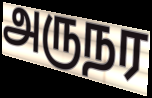
அருநர